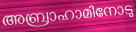
അബ്രാഹാമിനോടു